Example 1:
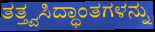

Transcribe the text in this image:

ತತ್ತ್ವಸಿದ್ಧಾಂತಗಳನ್ನು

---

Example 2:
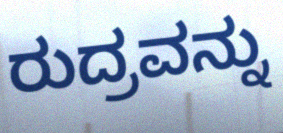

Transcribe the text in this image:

ರುದ್ರವನ್ನು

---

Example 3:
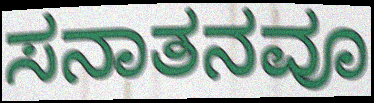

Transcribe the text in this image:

ಸನಾತನವೂ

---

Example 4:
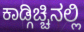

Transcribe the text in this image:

ಕಾಡ್ಗಿಚ್ಚಿನಲ್ಲಿ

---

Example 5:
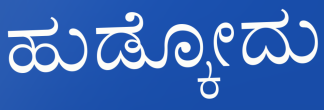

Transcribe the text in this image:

ಹುಡ್ಕೋದು